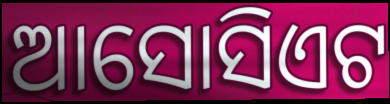
ଆସୋସିଏଟ